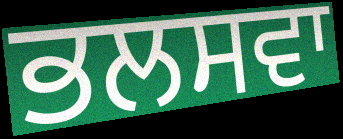
ਭਲਸਵਾ